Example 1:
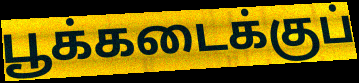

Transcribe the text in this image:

பூக்கடைக்குப்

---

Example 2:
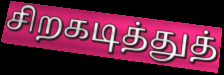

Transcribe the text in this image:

சிறகடித்துத்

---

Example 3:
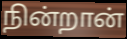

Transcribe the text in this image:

நின்றான்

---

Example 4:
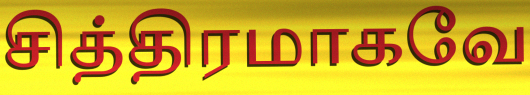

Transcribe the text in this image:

சித்திரமாகவே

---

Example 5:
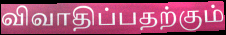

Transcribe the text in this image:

விவாதிப்பதற்கும்